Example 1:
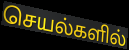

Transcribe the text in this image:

செயல்களில்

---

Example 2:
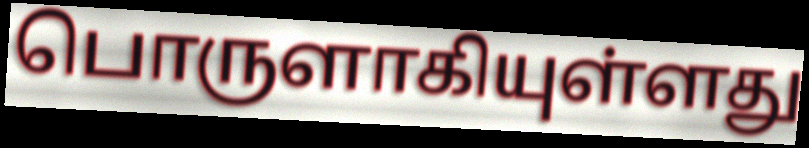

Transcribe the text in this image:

பொருளாகியுள்ளது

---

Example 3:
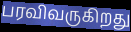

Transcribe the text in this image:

பரவிவருகிறது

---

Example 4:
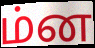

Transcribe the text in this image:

ம்ன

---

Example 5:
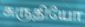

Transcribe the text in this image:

சுருதியோ